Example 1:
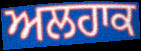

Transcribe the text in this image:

ਅਲਹਾਕ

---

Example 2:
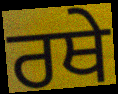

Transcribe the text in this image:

ਰਥੇ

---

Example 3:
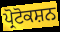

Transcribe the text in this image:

ਪ੍ਰੋਟੋਕਸ਼ਨ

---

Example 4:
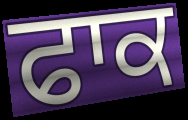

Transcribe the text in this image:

ਫਾਕ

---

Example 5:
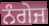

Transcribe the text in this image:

ਨੰਗੇਜ